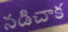
నడిచాక